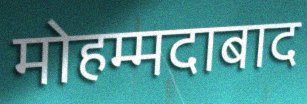
मोहम्मदाबाद